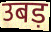
उबड़